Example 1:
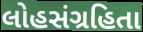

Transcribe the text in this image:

લોહસંગ્રહિતા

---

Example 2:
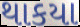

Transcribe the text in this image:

થાકયા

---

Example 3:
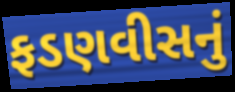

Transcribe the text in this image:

ફડણવીસનું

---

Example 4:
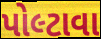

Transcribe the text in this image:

પોલ્ટાવા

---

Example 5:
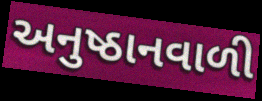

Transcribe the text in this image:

અનુષ્ઠાનવાળી